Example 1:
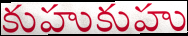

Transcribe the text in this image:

కుహుకుహు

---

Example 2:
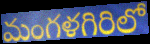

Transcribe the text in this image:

మంగళగిరిలో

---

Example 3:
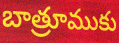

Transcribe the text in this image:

బాత్రూముకు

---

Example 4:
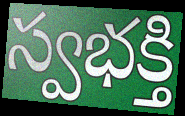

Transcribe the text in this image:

స్వభక్తి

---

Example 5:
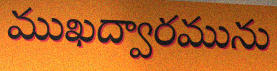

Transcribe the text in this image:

ముఖద్వారమును